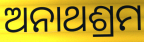
ଅନାଥଶ୍ରମ